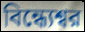
বিন্ধ্যেশ্বর